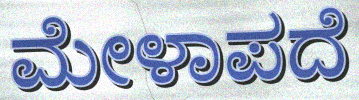
ಮೇಳಾಪದೆ